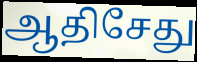
ஆதிசேது